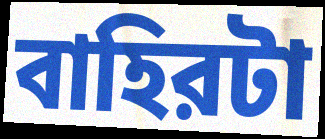
বাহিরটা